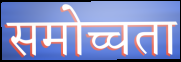
समोच्चता